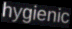
hygienic